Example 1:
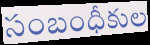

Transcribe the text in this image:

సంబంధీకుల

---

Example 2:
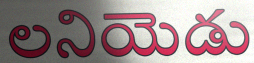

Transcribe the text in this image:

లనియెడు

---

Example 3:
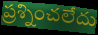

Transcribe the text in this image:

ప్రశ్నించలేదు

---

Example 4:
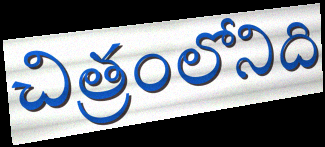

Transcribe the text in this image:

చిత్రంలోనిది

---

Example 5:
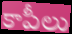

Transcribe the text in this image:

కాపీలు